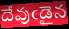
దేవుఁడైన